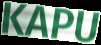
KAPU